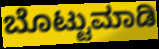
ಬೊಟ್ಟುಮಾಡಿ